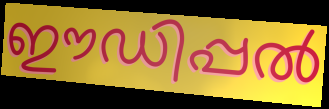
ഈഡിപ്പൽ